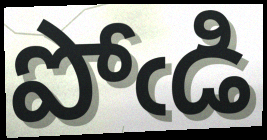
పోఁడి